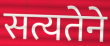
सत्यतेने